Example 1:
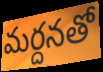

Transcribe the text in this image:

మర్దనతో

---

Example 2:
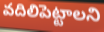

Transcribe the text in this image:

వదిలిపెట్టాలని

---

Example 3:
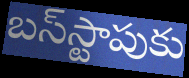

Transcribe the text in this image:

బస్‌స్టాపుకు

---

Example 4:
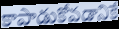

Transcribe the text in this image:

కాపాడుకోవడానికే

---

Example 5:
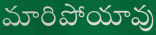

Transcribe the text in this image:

మారిపోయావు